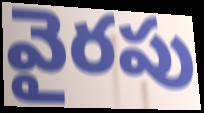
వైరపు